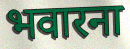
भवारना